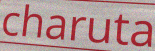
charuta